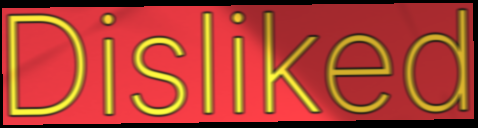
Disliked